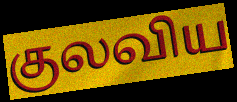
குலவிய